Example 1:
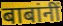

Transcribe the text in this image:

बाबांनीं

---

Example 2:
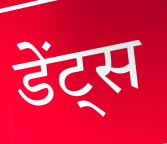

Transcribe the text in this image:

डेंट्स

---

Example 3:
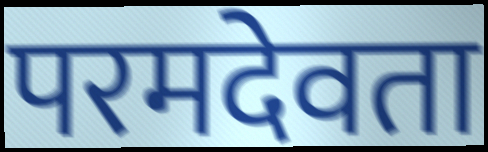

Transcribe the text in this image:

परमदेवता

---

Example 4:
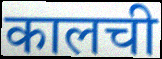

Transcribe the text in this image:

कालची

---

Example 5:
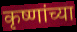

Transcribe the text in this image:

कृष्णांच्या